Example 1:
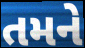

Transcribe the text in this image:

તમને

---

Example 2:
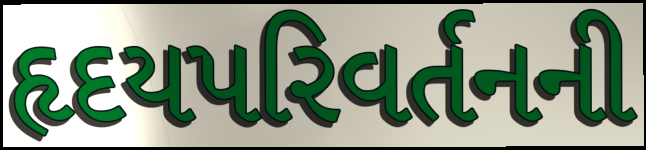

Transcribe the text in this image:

હૃદયપરિવર્તનની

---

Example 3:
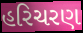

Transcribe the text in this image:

હરિચરણ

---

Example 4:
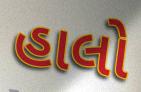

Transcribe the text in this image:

હાલો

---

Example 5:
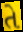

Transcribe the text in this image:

તે